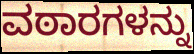
ವಠಾರಗಳನ್ನು